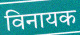
विनायक